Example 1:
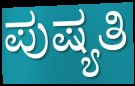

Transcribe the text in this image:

ಪುಷ್ಯತಿ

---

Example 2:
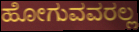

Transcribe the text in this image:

ಹೋಗುವವರಲ್ಲ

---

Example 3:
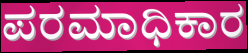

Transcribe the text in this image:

ಪರಮಾಧಿಕಾರ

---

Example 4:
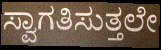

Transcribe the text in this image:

ಸ್ವಾಗತಿಸುತ್ತಲೇ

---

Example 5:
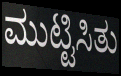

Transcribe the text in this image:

ಮುಟ್ಟಿಸಿತು